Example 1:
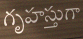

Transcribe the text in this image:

గృహస్తుగా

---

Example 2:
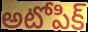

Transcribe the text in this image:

అటోపిక్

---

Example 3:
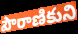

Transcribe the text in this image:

పౌరాణికుని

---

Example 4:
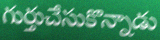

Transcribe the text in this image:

గుర్తుచేసుకొన్నాడు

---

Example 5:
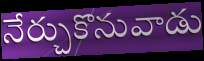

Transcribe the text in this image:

నేర్చుకొనువాడు